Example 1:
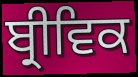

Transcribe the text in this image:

ਬ੍ਰੀਵਿਕ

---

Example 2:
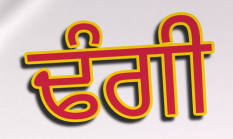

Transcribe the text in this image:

ਢੰਗੀ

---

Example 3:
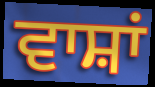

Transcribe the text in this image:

ਵਾਸ਼ਾਂ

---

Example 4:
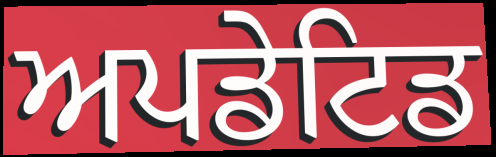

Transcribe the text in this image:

ਅਪਡੇਟਿਡ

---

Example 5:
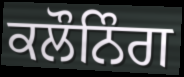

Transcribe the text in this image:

ਕਲੌਨਿੰਗ